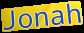
Jonah